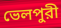
ভেলপুরী